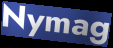
Nymag